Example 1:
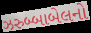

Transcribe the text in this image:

ઝરુબ્બાબેલનો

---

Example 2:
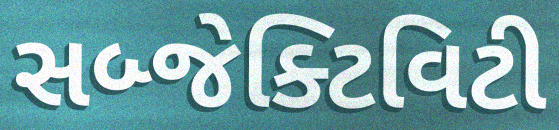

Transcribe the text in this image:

સબ્જેક્ટિવિટી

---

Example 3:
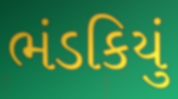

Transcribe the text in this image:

ભંડકિયું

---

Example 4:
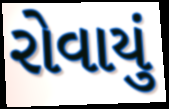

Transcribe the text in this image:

રોવાયું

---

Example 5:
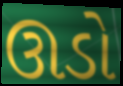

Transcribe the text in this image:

ઊડો